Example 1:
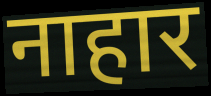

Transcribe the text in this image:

नाहार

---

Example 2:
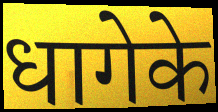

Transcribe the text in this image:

धागेके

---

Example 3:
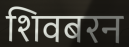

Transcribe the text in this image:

शिवबरन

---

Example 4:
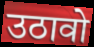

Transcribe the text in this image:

उठावो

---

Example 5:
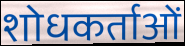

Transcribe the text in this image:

शोधकर्ताओं